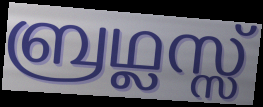
ബ്രഥ്ലസ്സ്